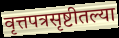
वृत्तपत्रसृष्टीतल्या